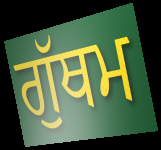
ਗੁੱਥਮ